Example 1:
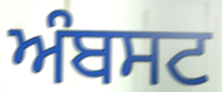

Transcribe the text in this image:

ਅੰਬਸਟ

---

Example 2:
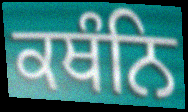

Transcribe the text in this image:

ਕਥੰਨਿ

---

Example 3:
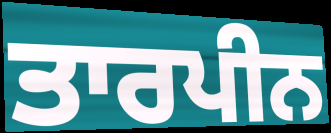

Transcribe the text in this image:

ਤਾਰਪੀਨ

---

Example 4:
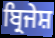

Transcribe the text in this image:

ਬ੍ਰਿਜੇਸ਼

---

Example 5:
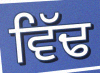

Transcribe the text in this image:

ਵਿੱਢ